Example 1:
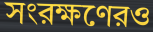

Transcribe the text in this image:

সংরক্ষণেরও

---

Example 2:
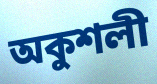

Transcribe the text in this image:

অকুশলী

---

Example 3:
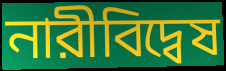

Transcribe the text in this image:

নারীবিদ্বেষ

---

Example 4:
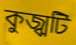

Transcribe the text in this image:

কুজ্ঝটি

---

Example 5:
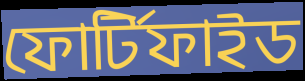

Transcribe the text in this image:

ফোর্টিফাইড